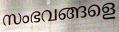
സംഭവങ്ങളെ